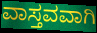
ವಾಸ್ತವವಾಗಿ